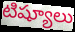
టిష్యూలు